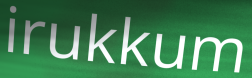
irukkum